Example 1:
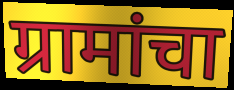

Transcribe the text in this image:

ग्रामांचा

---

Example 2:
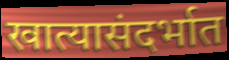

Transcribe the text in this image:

खात्यासंदर्भात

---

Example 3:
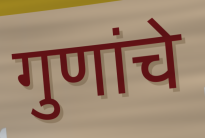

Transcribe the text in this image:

गुणांचे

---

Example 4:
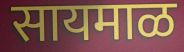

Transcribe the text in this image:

सायमाळ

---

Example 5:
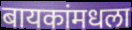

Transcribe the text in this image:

बायकांमधला